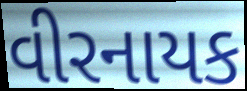
વીરનાયક